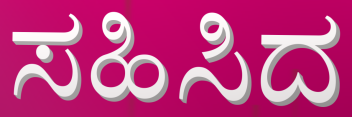
ಸಹಿಸಿದ